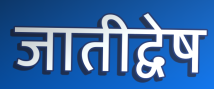
जातीद्वेष